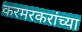
करमरकरांच्या